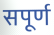
सपूर्ण